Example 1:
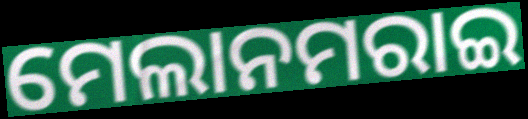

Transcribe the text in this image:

ମେଲାନମରାଇ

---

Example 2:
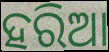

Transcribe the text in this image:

ହରିଆ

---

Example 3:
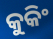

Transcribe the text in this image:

କୁକିଂ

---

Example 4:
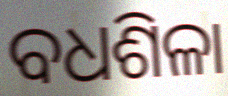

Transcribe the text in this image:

ବଧଶିଳା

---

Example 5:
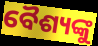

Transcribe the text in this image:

ବୈଶ୍ୟଙ୍କୁ